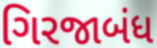
ગિરજાબંધ